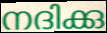
നദിക്കു